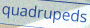
quadrupeds